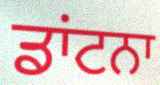
ਡਾਂਟਨਾ